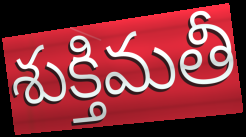
శుక్తిమతీ